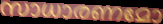
സാധാരണമോ